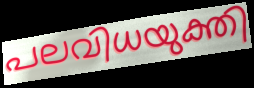
പലവിധയുക്തി